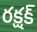
రక్షక్